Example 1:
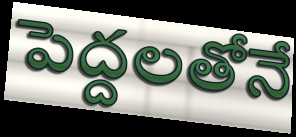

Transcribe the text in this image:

పెద్దలతోనే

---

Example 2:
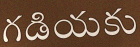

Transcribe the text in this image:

గడియకు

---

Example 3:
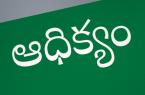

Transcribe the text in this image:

ఆధిక్యం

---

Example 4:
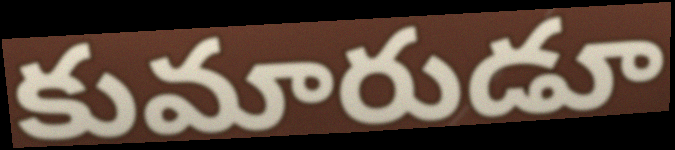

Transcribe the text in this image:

కుమారుడూ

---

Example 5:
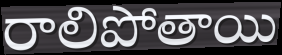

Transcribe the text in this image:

రాలిపోతాయి